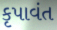
કૃપાવંત